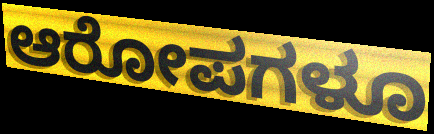
ಆರೋಪಗಳೂ